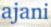
ajani